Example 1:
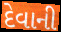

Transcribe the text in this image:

દેવાની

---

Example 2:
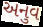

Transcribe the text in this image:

અનુવ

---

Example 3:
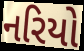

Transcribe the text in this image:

નરિયો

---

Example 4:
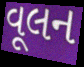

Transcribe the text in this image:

વૂલન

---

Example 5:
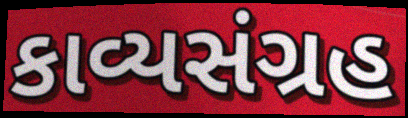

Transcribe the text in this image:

કાવ્યસંગ્રહ